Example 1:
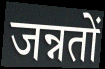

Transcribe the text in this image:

जन्नतों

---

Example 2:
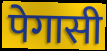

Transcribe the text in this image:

पेगासी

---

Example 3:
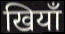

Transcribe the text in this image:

खियाँ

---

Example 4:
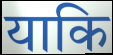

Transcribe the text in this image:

याकि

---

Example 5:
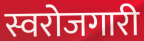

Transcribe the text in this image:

स्वरोजगारी